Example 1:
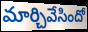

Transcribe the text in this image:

మార్చివేసిందో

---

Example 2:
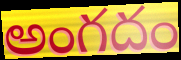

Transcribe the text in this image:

అంగదం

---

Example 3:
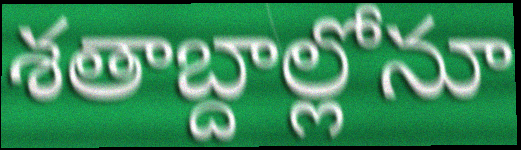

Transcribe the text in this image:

శతాబ్దాల్లోనూ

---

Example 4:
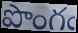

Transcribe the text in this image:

పొంగఁ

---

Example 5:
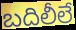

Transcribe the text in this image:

బదిలీలే